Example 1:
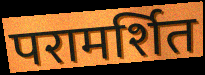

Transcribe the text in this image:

परामर्शित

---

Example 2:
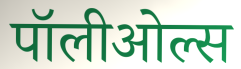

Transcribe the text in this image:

पॉलीओल्स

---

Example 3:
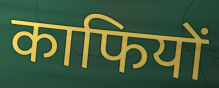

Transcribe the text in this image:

काफियों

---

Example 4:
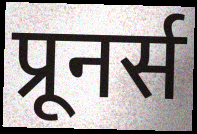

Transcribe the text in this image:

प्रूनर्स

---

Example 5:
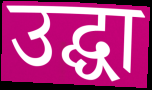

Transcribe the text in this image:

उद्घा